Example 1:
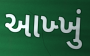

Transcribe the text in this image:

આખ્ખું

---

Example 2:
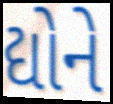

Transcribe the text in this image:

દ્યોને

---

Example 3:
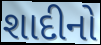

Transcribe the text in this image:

શાદીનો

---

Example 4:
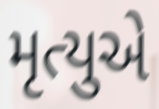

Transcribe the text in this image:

મૃત્યુએ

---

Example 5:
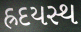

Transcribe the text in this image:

હ્રદયસ્થ